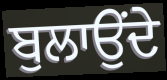
ਬੁਲਾਉਂਦੇ